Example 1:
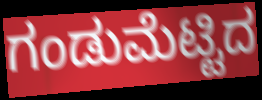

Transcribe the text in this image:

ಗಂಡುಮೆಟ್ಟಿದ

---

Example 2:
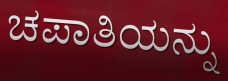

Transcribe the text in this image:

ಚಪಾತಿಯನ್ನು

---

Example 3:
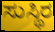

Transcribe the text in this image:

ಸುಸ್ಥಿರ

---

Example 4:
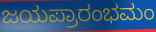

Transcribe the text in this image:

ಜಯಪ್ರಾರಂಭಮಂ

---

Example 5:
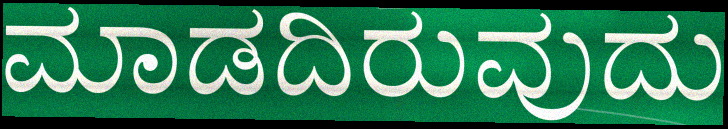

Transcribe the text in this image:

ಮಾಡದಿರುವುದು